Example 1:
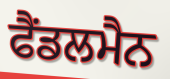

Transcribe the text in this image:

ਫੈਂਡਲਮੈਨ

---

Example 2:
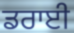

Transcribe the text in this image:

ਡਰਾਈ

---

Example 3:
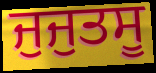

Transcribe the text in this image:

ਜੁਜੁਤਸੂ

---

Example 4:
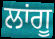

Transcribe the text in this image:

ਲਾਂਗੂ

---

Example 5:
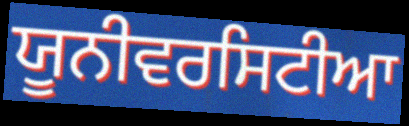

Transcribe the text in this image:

ਯੂਨੀਵਰਸਿਟੀਆ